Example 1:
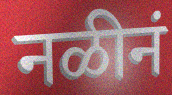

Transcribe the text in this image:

नळीनं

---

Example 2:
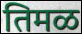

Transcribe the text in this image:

तिमळ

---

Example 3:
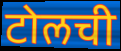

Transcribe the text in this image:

टोलची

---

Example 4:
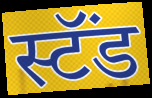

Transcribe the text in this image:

स्टॅंड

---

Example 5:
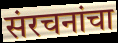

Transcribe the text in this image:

संरचनांचा